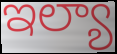
ఇల్యా